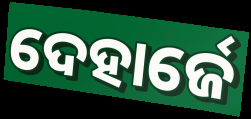
ଦେହାର୍ଜେ